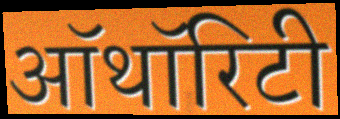
ऑथॉरिटी